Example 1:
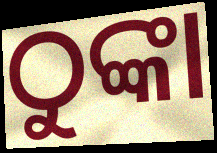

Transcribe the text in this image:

ଠୁଙ୍କା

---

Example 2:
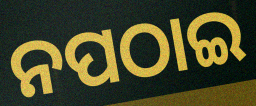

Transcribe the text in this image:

ନପଠାଇ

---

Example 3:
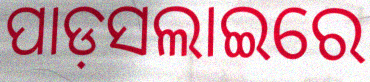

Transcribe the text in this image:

ପାଡ଼ସଲାଇରେ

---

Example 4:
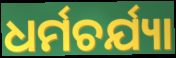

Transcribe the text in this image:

ଧର୍ମଚର୍ଯ୍ୟା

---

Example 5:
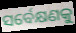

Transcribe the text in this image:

ସର୍ବେକ୍ଷଣକୁ